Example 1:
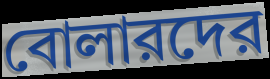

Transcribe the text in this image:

বোলারদের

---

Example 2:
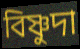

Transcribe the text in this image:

বিষ্ণুদা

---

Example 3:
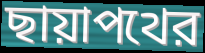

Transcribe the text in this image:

ছায়াপথের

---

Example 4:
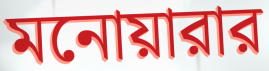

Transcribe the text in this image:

মনোয়ারার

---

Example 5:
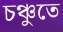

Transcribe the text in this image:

চঞ্চুতে